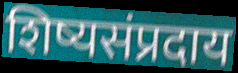
शिष्यसंप्रदाय